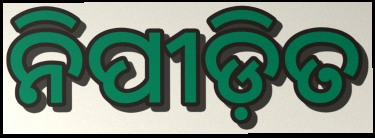
ନିପୀଡ଼ିତ